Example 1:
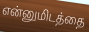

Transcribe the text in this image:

என்னுமிடத்தை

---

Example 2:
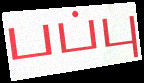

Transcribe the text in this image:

பப்பு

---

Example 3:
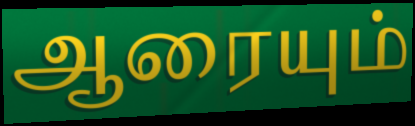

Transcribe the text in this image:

ஆரையும்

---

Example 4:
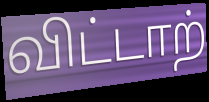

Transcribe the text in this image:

விட்டாற்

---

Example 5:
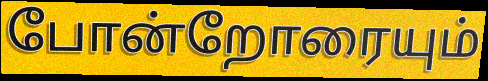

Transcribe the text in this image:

போன்றோரையும்